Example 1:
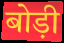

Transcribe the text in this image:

बोड़ी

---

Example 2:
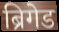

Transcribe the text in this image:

ब्रिगेड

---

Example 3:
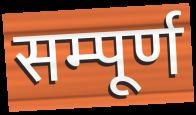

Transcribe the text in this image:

सम्पूर्ण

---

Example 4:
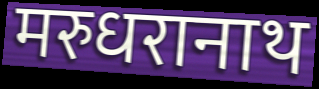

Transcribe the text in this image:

मरुधरानाथ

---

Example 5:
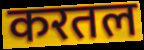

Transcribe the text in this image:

करतल